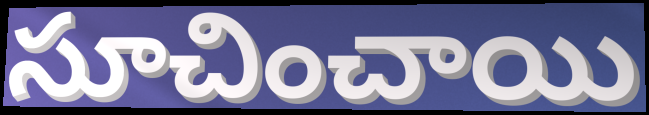
సూచించాయి